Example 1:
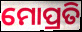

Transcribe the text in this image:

ମୋପ୍ରତି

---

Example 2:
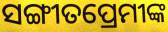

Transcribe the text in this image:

ସଙ୍ଗୀତପ୍ରେମୀଙ୍କ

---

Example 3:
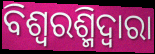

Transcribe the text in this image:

ବିଶ୍ୱରଶ୍ମିଦ୍ୱାରା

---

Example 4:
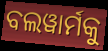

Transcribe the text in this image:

ବଲୱାର୍ମକୁ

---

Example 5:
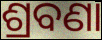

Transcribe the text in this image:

ଶ୍ରବଣା